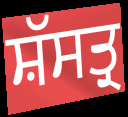
ਸ਼ੱਸਤ੍ਰ